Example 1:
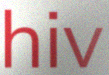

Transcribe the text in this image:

hiv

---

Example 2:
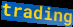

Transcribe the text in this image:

trading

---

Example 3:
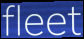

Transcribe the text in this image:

fleet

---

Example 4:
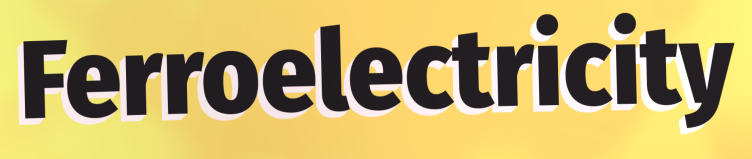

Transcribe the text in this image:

Ferroelectricity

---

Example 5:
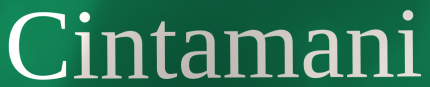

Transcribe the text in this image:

Cintamani